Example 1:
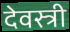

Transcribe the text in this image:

देवस्त्री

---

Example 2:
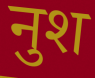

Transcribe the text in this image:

नुश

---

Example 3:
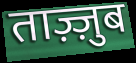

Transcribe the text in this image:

ताज़्ज़ुब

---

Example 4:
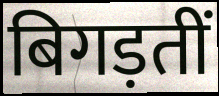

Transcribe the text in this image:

बिगड़तीं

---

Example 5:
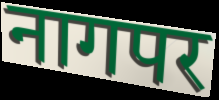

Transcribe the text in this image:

नागपर